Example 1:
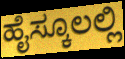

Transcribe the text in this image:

ಹೈಸ್ಕೂಲಲ್ಲಿ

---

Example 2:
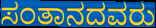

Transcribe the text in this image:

ಸಂತಾನದವರು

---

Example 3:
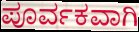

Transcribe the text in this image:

ಪೂರ್ವಕವಾಗಿ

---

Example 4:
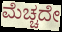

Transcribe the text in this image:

ಮೆಚ್ಚದೇ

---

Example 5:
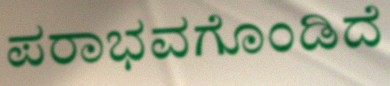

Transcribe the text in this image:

ಪರಾಭವಗೊಂಡಿದೆ